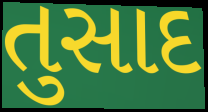
તુસાદ